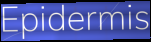
Epidermis